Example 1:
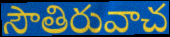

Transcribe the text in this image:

సౌతిరువాచ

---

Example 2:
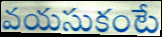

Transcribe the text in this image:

వయసుకంటే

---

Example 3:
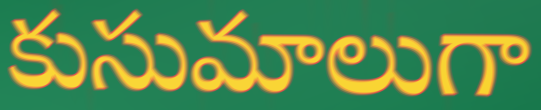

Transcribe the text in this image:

కుసుమాలుగా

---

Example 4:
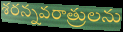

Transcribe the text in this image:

శరన్నవరాత్రులను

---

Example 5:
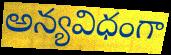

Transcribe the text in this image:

అన్యవిధంగా